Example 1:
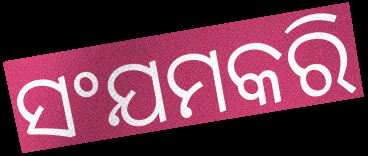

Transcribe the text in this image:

ସଂଯମକରି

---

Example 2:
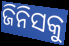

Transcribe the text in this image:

ଜିନିସକୁ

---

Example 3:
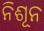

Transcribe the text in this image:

ନିଶୂନ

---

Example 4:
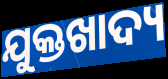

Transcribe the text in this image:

ଯୁକ୍ତଖାଦ୍ୟ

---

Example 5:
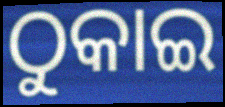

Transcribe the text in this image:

ଠୁକାଇ